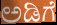
ಅಡಿಗೆ